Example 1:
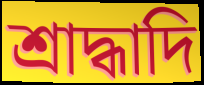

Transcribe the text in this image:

শ্রাদ্ধাদি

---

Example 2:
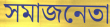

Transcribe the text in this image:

সমাজনেতা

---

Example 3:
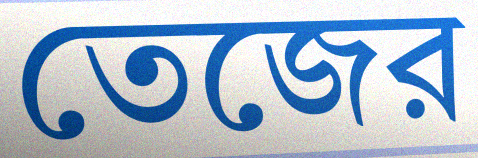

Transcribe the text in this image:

তেজের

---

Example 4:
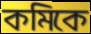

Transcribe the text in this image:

কমিকে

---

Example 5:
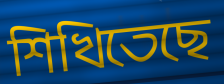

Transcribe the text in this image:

শিখিতেছে